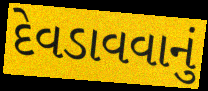
દેવડાવવાનું